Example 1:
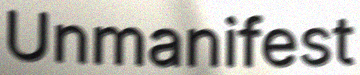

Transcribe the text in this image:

Unmanifest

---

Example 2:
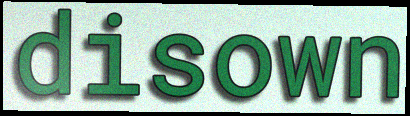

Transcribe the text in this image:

disown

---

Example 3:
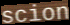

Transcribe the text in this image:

scion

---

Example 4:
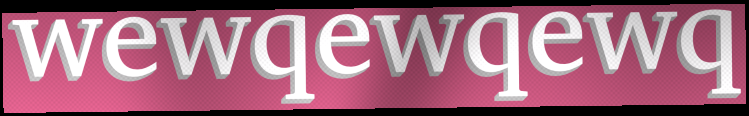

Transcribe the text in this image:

wewqewqewq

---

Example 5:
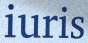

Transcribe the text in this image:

iuris